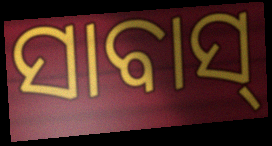
ସାବାସ୍